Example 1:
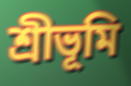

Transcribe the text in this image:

শ্রীভূমি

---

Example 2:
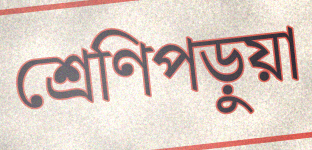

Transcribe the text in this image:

শ্রেণিপড়ুয়া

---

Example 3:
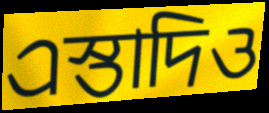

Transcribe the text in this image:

এস্তাদিও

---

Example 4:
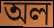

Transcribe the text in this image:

অল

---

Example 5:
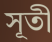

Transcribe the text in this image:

সূতী